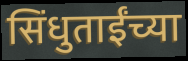
सिंधुताईंच्या